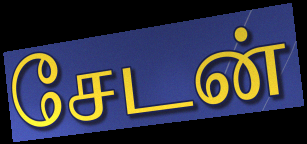
சேடன்